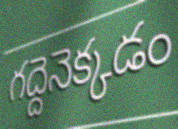
గద్దెనెక్కడం